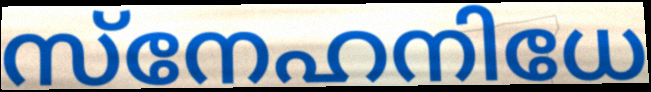
സ്നേഹനിധേ